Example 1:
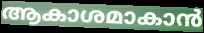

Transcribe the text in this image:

ആകാശമാകാൻ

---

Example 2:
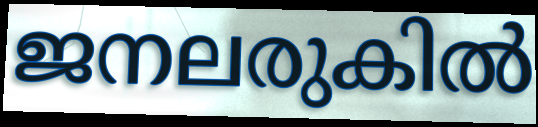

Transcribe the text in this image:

ജനലരുകിൽ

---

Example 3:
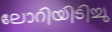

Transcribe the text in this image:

ലോറിയിടിച്ചു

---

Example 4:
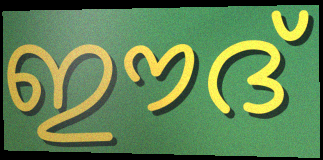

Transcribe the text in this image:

ഈദ്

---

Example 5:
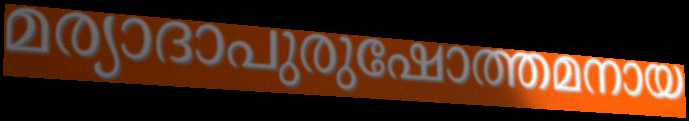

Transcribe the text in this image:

മര്യാദാപുരുഷോത്തമനായ